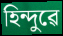
হিন্দুৱে